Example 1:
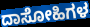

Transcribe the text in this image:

ದಾಸೋಹಿಗಳ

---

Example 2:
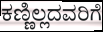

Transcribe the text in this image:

ಕಣ್ಣಿಲ್ಲದವರಿಗೆ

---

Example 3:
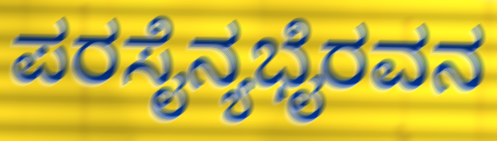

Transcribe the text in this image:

ಪರಸೈನ್ಯಭೈರವನ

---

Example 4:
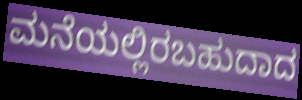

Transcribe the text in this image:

ಮನೆಯಲ್ಲಿರಬಹುದಾದ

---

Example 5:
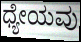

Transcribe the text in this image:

ಧ್ಯೇಯವು